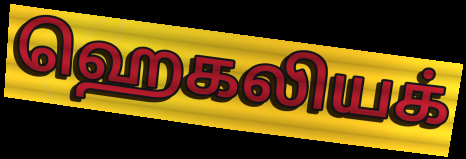
ஹெகலியக்